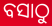
ବସାଠୁ